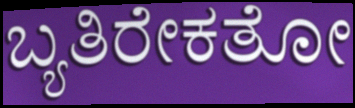
ಬ್ಯತಿರೇಕತೋ